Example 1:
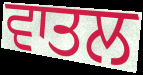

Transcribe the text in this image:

ਵਾਤਲ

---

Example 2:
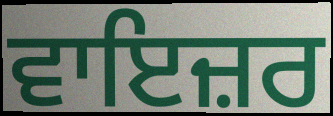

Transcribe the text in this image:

ਵਾਇਜ਼ਰ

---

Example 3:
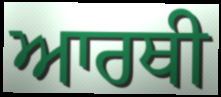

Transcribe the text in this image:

ਆਰਥੀ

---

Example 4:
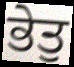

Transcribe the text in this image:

ਭੇਤੁ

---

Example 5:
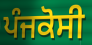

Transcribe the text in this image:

ਪੰਜਕੋਸੀ